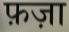
फ़ज़ा